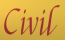
Civil